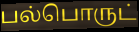
பல்பொருட்